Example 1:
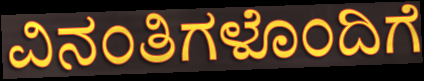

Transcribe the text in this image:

ವಿನಂತಿಗಳೊಂದಿಗೆ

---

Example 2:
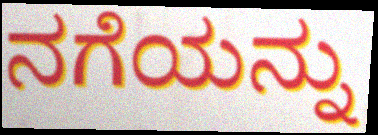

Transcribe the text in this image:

ನಗೆಯನ್ನು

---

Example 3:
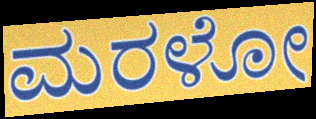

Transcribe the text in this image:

ಮರಳೋ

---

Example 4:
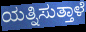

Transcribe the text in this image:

ಯತ್ನಿಸುತ್ತಾಳೆ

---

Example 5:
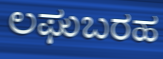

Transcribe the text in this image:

ಲಘುಬರಹ